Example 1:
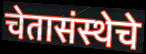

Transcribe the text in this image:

चेतासंस्थेचे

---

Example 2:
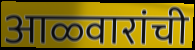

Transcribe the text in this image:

आळ्वारांची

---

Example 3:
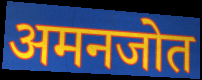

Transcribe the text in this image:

अमनजोत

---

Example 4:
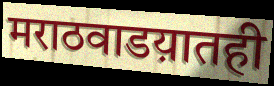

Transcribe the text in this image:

मराठवाडय़ातही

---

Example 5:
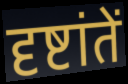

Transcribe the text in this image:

दृष्टांतें